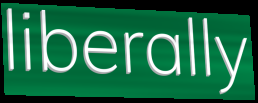
liberally